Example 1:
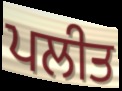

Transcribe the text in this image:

ਪਲੀਤ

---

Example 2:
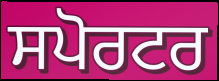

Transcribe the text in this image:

ਸਪੋਰਟਰ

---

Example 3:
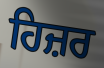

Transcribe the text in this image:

ਹਿਜ਼ਰ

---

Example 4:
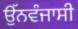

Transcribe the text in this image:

ਉੱਨਵੰਜਾਸੀ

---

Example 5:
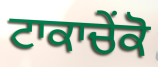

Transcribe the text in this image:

ਟਾਕਾਚੇਂਕੋ